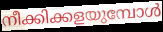
നീക്കിക്കളയുമ്പോൾ